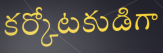
కర్కోటకుడిగా